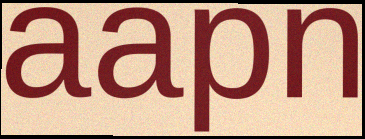
aapn